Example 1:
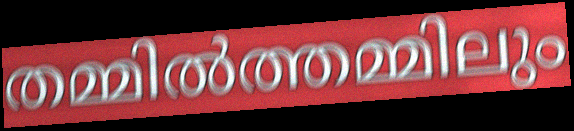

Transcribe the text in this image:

തമ്മിൽത്തമ്മിലും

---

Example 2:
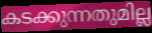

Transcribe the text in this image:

കടക്കുന്നതുമില്ല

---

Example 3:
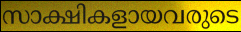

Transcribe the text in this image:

സാക്ഷികളായവരുടെ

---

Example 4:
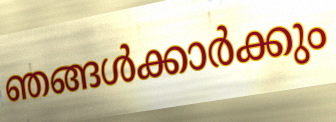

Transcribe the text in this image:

ഞങ്ങൾക്കാർക്കും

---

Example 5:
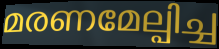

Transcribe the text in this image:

മരണമേല്പിച്ച